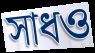
সাধও